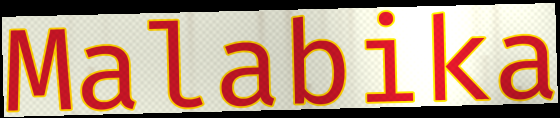
Malabika